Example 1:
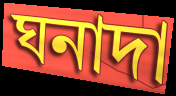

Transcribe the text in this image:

ঘনাদা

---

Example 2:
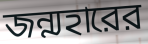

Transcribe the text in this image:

জন্মহারের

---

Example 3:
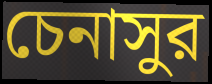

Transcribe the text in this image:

চেনাসুর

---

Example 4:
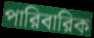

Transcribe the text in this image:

পারিবারিক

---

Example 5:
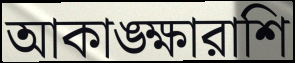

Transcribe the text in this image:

আকাঙ্ক্ষারাশি